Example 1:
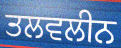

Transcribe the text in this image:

ਤਲਵਲੀਨ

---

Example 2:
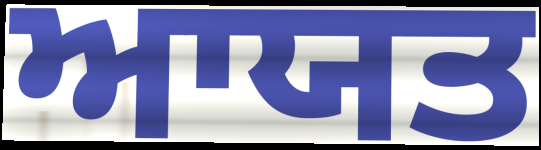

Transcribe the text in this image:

ਆਯਤ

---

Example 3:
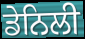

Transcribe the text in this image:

ਡੇਨਿਲੀ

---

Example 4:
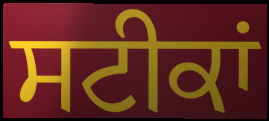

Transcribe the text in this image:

ਸਟੀਕਾਂ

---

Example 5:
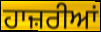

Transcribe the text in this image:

ਹਾਜ਼ਰੀਆਂ